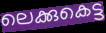
ലെക്കുകെട്ട